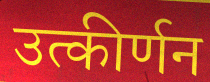
उत्कीर्णन